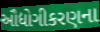
ઔદ્યોગીકરણના